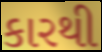
કારથી